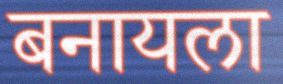
बनायला